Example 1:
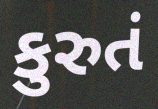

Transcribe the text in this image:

કુરુતં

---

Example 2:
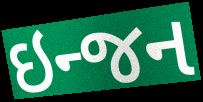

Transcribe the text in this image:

ઇન્જન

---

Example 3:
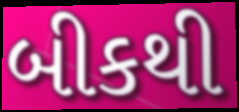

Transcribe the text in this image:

બીકથી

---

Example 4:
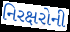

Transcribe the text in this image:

નિરક્ષરોની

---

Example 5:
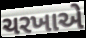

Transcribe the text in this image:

ચરખાએ